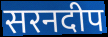
सरनदीप